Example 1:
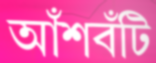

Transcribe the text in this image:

আঁশবঁটি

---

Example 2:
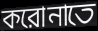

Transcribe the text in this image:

করোনাতে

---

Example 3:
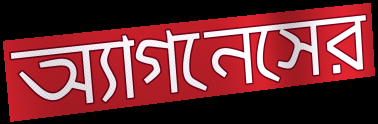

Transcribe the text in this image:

অ্যাগনেসের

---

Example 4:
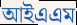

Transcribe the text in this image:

আইএএম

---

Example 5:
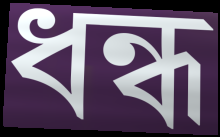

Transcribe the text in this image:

ধন্ধ